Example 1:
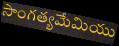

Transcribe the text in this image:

సాంగత్యమేమియు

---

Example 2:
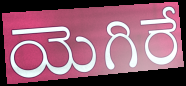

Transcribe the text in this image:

యెగిరే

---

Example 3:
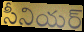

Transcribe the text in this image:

సీనియర్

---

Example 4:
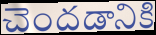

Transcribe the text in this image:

చెందడానికి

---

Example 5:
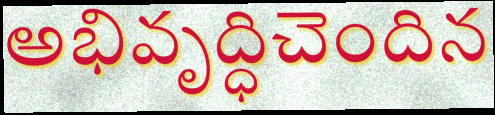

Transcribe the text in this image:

అభివృద్ధిచెందిన